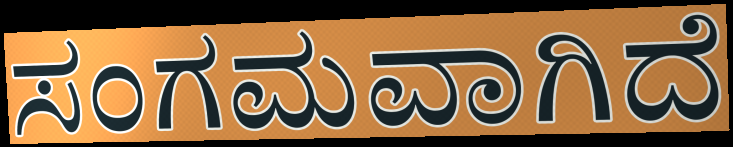
ಸಂಗಮವಾಗಿದೆ